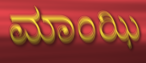
ಮಾಂಝಿ